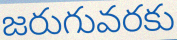
జరుగువరకు